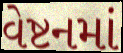
વેષ્ટનમાં